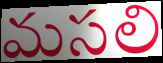
మసలి